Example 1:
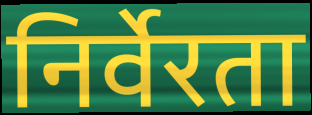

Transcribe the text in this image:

निर्वेरता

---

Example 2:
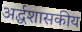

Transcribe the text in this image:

अर्द्धशासकीय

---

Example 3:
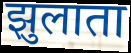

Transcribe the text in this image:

झुलाता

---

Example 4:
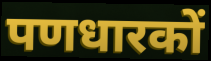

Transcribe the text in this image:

पणधारकों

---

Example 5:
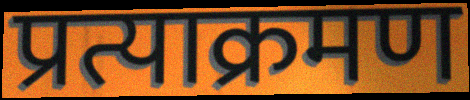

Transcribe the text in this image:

प्रत्याक्रमण